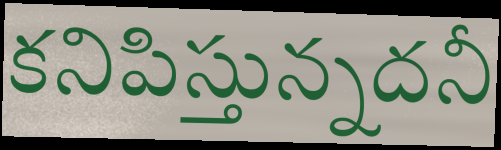
కనిపిస్తున్నదనీ